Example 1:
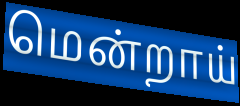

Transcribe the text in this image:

மென்றாய்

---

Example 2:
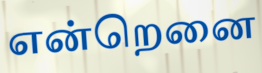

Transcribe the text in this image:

என்றெனை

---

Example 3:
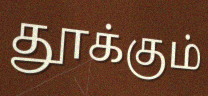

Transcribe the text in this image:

தூக்கும்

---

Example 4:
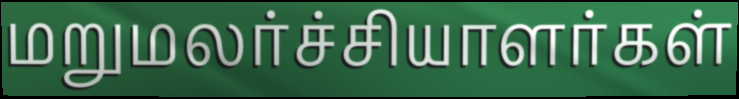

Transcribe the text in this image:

மறுமலர்ச்சியாளர்கள்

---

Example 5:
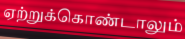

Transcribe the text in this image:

ஏற்றுக்கொண்டாலும்